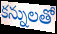
కన్నులతో